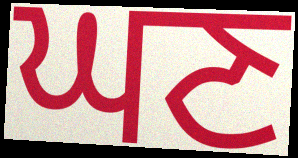
ਘਣ